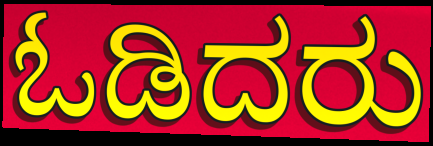
ಓಡಿದರು